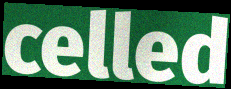
celled